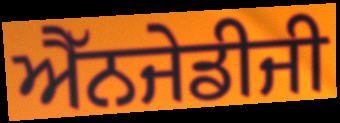
ਐੱਨਜੇਡੀਜੀ